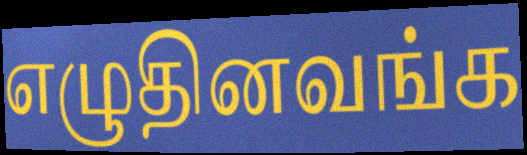
எழுதினவங்க